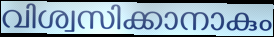
വിശ്വസിക്കാനാകും